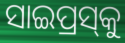
ସାଇପ୍ରସ୍‌କୁ